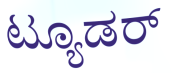
ಟ್ಯೂಡರ್